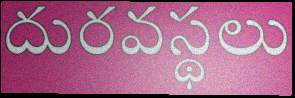
దురవస్థలు